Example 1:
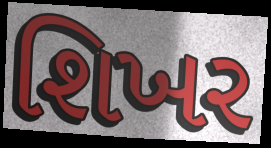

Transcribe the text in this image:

શિખર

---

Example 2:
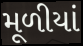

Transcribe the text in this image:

મૂળીયાં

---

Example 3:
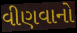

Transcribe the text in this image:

વીણવાનો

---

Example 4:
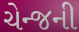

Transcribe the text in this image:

ચેન્જની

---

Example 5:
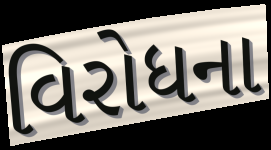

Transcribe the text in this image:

વિરોધના